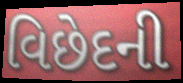
વિછેદની